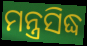
ମନ୍ତ୍ରସିଦ୍ଧ